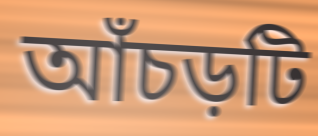
আঁচড়টি